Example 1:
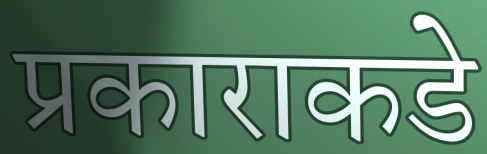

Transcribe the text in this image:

प्रकाराकडे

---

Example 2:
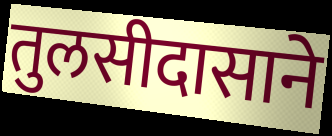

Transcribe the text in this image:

तुलसीदासाने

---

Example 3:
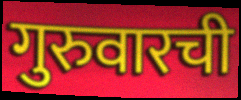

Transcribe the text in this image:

गुरुवारची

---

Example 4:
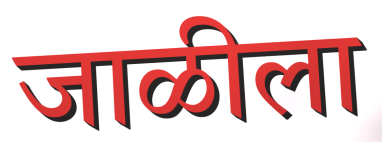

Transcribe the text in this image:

जाळीला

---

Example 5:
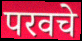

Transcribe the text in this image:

परवचे